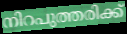
നിറപുത്തരിക്ക്